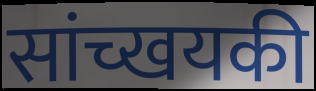
सांच्खयकी